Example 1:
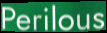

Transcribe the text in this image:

Perilous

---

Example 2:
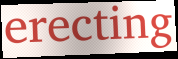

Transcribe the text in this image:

erecting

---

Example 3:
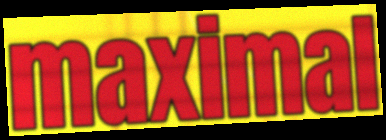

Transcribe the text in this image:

maximal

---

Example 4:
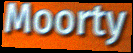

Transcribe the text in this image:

Moorty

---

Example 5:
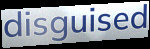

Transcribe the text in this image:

disguised